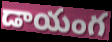
డాయంగ